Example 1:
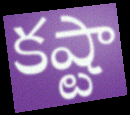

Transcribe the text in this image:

కష్టా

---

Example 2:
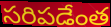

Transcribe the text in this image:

సరిపడేంత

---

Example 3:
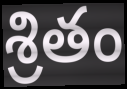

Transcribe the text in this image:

శ్రితం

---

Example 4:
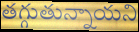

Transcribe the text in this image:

తగ్గుతున్నాయని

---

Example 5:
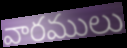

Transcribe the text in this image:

వారములు